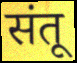
संतू